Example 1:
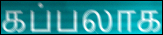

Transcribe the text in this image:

கப்பலாக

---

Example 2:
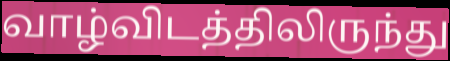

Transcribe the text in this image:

வாழ்விடத்திலிருந்து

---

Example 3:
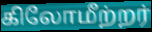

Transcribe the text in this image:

கிலோமீற்றர்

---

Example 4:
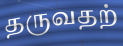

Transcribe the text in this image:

தருவதற்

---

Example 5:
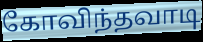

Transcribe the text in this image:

கோவிந்தவாடி